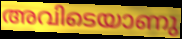
അവിടെയാണു